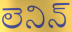
లెనిన్